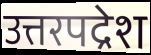
उत्तरपद्रेश